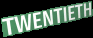
TWENTIETH